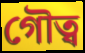
গৌত্ব